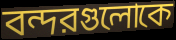
বন্দরগুলোকে